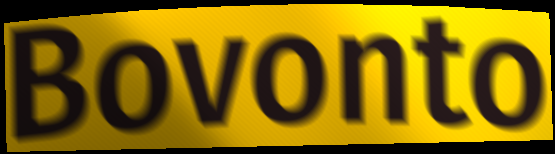
Bovonto